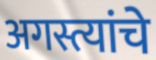
अगस्त्यांचे